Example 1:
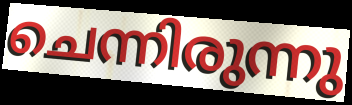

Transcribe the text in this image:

ചെന്നിരുന്നു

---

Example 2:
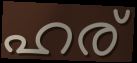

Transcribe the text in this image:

ഹര്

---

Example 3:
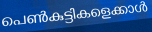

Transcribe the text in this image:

പെൺകുട്ടികളെക്കാൾ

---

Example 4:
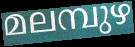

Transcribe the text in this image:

മലമ്പുഴ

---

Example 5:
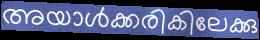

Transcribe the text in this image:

അയാൾക്കരികിലേക്കു